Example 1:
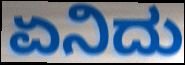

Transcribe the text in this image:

ಏನಿದು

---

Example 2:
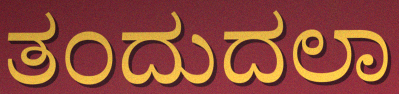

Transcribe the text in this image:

ತಂದುದಲಾ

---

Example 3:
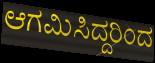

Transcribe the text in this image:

ಆಗಮಿಸಿದ್ದರಿಂದ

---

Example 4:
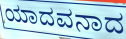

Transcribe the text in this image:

ಯಾದವನಾದ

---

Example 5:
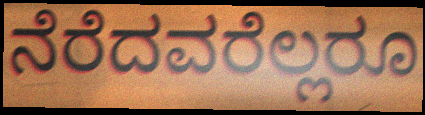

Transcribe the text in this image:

ನೆರೆದವರೆಲ್ಲರೂ